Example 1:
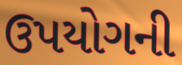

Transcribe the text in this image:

ઉપયોગની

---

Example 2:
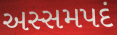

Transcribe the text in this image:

અસ્સમપદં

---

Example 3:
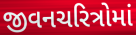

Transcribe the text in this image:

જીવનચરિત્રોમાં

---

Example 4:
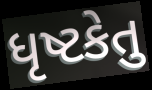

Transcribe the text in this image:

ધૃષ્ટકેતુ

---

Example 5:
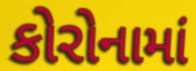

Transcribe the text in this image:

કોરોનામાં